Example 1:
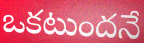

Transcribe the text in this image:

ఒకటుందనే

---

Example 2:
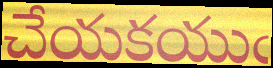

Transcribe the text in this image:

చేయకయుఁ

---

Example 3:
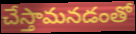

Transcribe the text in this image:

చేస్తామనడంతో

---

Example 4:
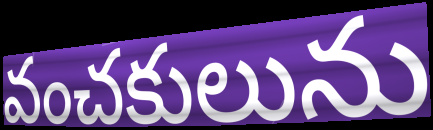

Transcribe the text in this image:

వంచకులును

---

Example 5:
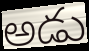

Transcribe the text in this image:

అడు